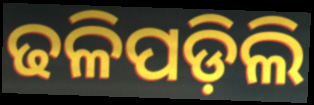
ଢଳିପଡ଼ିଲି